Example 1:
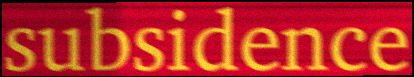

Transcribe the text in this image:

subsidence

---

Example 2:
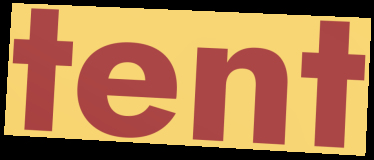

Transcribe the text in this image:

tent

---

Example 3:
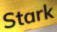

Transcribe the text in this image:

Stark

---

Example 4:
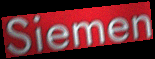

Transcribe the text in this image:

Siemen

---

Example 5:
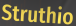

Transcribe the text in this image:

Struthio